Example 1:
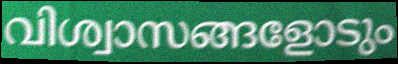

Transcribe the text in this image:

വിശ്വാസങ്ങളോടും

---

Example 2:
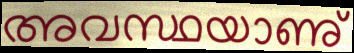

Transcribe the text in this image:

അവസ്ഥയാണു്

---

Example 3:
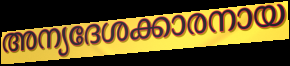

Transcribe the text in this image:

അന്യദേശക്കാരനായ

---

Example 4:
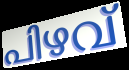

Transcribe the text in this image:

പിഴവ്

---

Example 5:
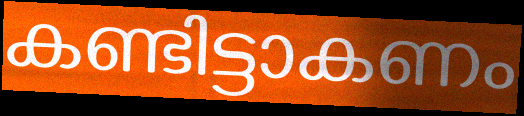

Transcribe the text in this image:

കണ്ടിട്ടാകണം